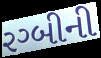
રગ્બીની